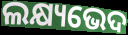
ଲକ୍ଷ୍ୟଭେଦ